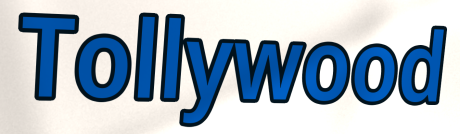
Tollywood